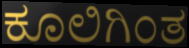
ಕೂಲಿಗಿಂತ